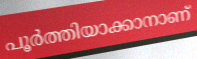
പൂർത്തിയാക്കാനാണ്